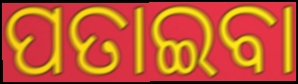
ପତାଇବା